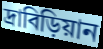
দ্রাবিড়িয়ান